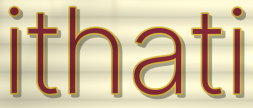
ithati